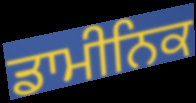
ਡਾਮੀਨਿਕ